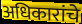
अधिकारांचे